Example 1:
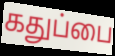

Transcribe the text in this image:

கதுப்பை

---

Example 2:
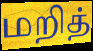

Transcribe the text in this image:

மறித்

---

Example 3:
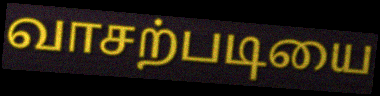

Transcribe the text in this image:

வாசற்படியை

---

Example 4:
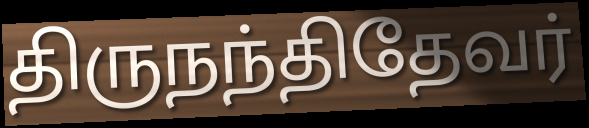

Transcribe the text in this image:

திருநந்திதேவர்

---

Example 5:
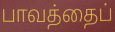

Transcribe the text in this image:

பாவத்தைப்